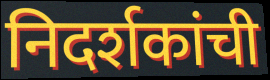
निदर्शकांची